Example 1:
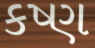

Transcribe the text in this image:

કષ્ણ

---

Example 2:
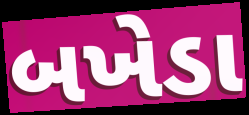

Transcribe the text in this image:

બખેડા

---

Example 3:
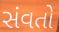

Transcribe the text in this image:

સંવતો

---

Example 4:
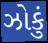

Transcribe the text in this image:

ઝોકું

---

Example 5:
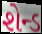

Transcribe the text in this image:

શેન્ડ